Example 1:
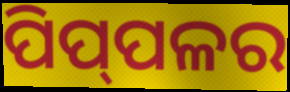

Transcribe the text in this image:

ପିପ୍‌ପଳର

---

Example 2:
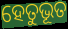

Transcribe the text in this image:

ହେତୁଭୂତ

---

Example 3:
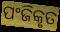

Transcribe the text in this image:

ପଂଜିକୃତ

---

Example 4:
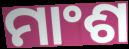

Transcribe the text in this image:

ମାଂଶ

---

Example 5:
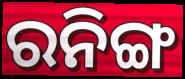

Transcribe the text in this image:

ରନିଙ୍ଗ